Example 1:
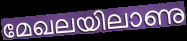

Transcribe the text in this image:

മേഖലയിലാണു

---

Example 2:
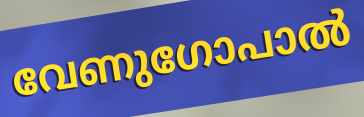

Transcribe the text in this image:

വേണുഗോപാൽ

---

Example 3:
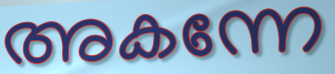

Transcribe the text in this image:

അകന്നേ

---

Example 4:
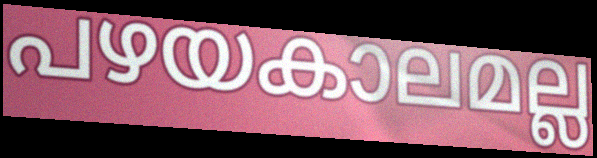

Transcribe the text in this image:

പഴയകാലമല്ല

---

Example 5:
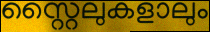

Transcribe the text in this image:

സ്റ്റൈലുകളാലും